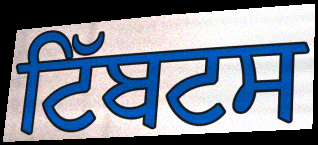
ਟਿੱਬਟਸ